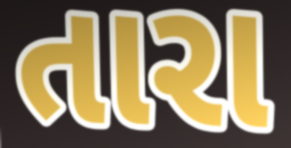
તારા